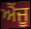
ਐਂਜੂ